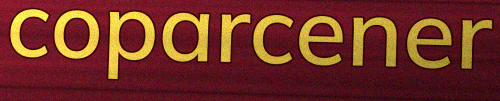
coparcener